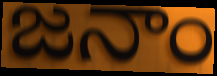
జనాం